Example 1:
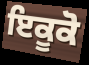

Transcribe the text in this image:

ਇਕੂਕੋ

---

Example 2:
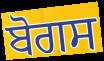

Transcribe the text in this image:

ਬੋਗਸ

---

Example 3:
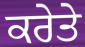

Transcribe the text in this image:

ਕਰੇਤੇ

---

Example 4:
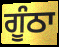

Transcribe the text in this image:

ਗੂੰਠਾ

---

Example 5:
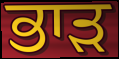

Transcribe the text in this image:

ਭਾੜ